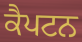
ਕੈਪਟਨ